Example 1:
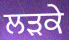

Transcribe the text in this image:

ਲਡ਼ਕੇ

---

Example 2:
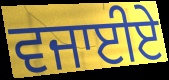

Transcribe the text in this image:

ਵਜਾਈਏ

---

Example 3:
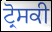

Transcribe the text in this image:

ਟ੍ਰੋਸਕੀ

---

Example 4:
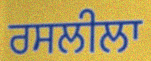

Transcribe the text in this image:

ਰਸਲੀਲਾ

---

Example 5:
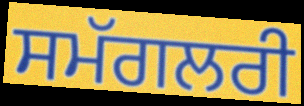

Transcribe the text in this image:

ਸਮੱਗਲਰੀ